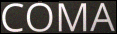
COMA